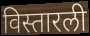
विस्तारली